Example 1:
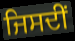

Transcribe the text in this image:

ਜਿਸਦੀਂ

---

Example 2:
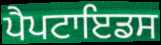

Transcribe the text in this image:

ਪੈਪਟਾਇਡਸ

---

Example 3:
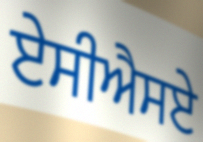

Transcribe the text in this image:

ਏਸੀਐਸਏ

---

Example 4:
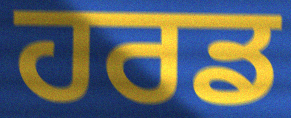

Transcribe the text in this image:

ਹਰਡ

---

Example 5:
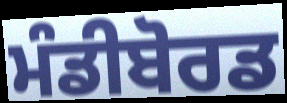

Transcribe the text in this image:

ਮੰਡੀਬੋਰਡ